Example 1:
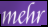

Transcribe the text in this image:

mehr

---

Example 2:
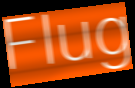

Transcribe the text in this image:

Flug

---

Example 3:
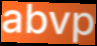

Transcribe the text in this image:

abvp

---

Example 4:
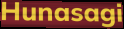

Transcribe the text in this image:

Hunasagi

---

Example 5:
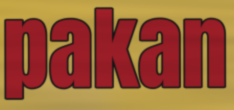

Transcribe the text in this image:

pakan